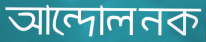
আন্দোলনক